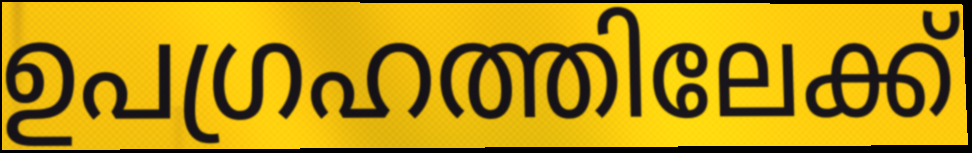
ഉപഗ്രഹത്തിലേക്ക്